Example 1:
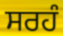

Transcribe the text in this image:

ਸਰਹੰ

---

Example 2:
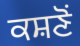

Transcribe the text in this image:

ਕਸ਼ਣੋਂ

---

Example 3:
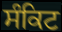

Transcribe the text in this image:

ਸੰਕਿਟ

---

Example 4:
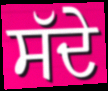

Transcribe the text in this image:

ਸੱਦੇ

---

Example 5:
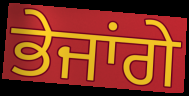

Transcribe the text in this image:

ਭੇਜਾਂਗੇ